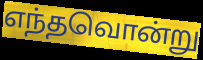
எந்தவொன்று